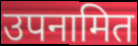
उपनामित